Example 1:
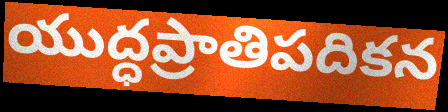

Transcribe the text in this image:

యుద్ధప్రాతిపదికన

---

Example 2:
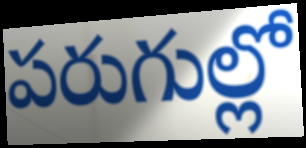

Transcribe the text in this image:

పరుగుల్లో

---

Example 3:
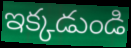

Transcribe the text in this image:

ఇక్కడుండి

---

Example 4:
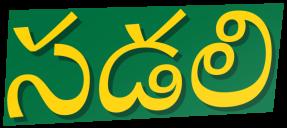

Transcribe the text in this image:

సడలి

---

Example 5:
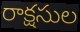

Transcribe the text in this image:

రాక్షసుల